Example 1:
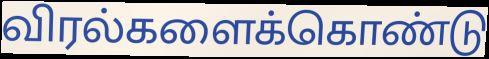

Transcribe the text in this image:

விரல்களைக்கொண்டு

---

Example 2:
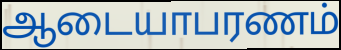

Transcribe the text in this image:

ஆடையாபரணம்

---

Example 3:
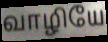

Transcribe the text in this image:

வாழியே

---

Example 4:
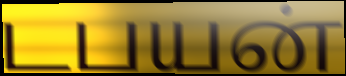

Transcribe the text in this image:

டபயன்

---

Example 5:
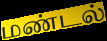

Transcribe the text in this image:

மண்டல்